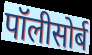
पॉलीसोर्ब